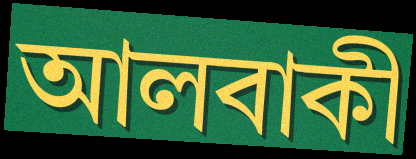
আলবাকী